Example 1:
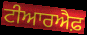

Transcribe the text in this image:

ਟੀਆਰਐਫ਼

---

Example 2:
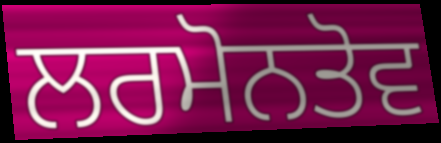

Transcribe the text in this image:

ਲਰਮੋਨਤੋਵ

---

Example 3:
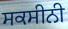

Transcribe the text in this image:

ਸਕਸੀਨੀ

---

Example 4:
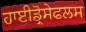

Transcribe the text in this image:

ਹਾਈਡ੍ਰੋਸੇਫਲਸ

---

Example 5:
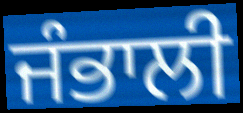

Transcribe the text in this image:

ਜੰਭਾਲੀ